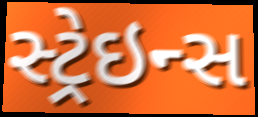
સ્ટ્રેઇન્સ